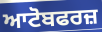
ਆਟੋਬਫਰਜ਼